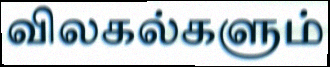
விலகல்களும்